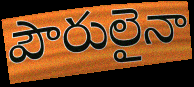
పౌరులైనా